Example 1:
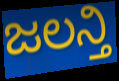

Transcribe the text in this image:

ಜಲನ್ತಿ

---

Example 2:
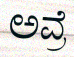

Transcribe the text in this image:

ಅವ್ರೆ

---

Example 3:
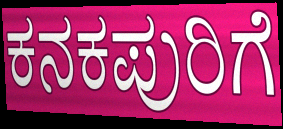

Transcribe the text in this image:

ಕನಕಪುರಿಗೆ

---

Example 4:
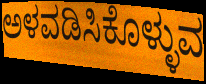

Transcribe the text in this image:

ಅಳವಡಿಸಿಕೊಳ್ಳುವ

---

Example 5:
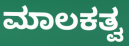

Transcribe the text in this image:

ಮಾಲಕತ್ವ